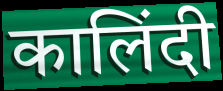
कालिंदी